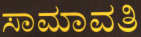
ಸಾಮಾವತಿ